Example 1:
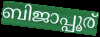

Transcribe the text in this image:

ബിജാപ്പൂര്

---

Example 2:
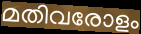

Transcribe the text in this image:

മതിവരോളം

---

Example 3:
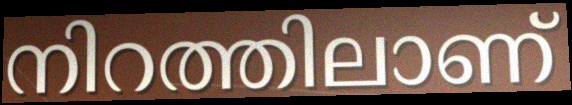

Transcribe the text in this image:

നിറത്തിലാണ്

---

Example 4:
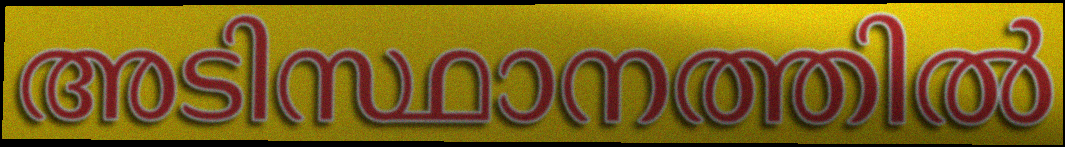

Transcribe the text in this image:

അടിസ്ഥാനത്തിൽ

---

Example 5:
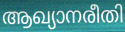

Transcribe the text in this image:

ആഖ്യാനരീതി